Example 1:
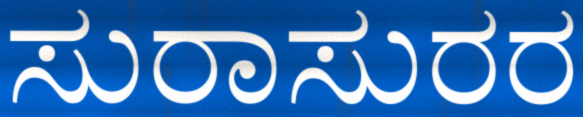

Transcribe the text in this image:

ಸುರಾಸುರರ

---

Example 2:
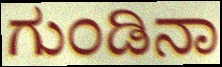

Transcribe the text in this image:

ಗುಂಡಿನಾ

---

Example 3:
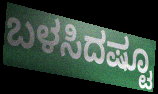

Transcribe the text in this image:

ಬಳಸಿದಷ್ಟೂ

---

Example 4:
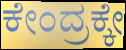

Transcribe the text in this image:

ಕೇಂದ್ರಕ್ಕೇ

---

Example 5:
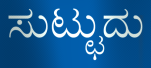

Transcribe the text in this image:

ಸುಟ್ಟುದು